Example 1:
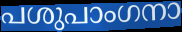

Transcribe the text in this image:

പശുപാംഗനാ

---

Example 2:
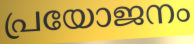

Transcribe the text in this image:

പ്രയോജനം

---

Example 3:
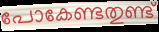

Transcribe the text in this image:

പോകേണ്ടതുണ്ട്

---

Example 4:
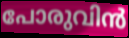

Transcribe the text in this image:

പോരുവിൻ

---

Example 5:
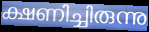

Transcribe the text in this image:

ക്ഷണിച്ചിരുന്നു